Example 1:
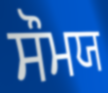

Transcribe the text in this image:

ਸੌਮਯ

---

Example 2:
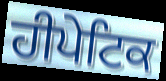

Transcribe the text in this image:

ਹੀਪੇਟਿਕ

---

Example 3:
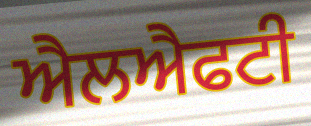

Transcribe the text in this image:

ਐਲਐਫਟੀ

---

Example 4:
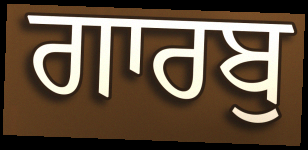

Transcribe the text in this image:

ਗਾਰਬੁ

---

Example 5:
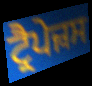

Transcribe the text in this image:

ਟ੍ਰੈਪੇਜ਼ਸ